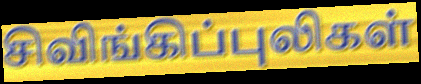
சிவிங்கிப்புலிகள்